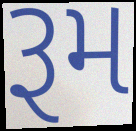
રૂમ